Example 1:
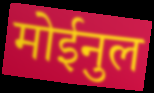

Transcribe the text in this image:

मोईनुल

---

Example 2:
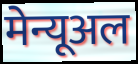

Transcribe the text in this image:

मेन्यूअल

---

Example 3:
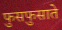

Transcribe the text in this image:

फुसफुसाते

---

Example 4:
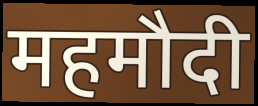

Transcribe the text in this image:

महमौदी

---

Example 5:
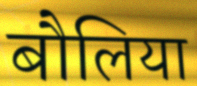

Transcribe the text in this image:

बौलिया